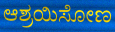
ಆಶ್ರಯಿಸೋಣ